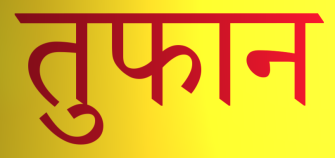
तुफान